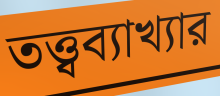
তত্ত্বব্যাখ্যার